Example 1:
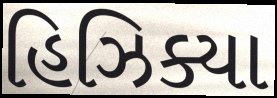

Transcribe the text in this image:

હિઝિક્યા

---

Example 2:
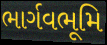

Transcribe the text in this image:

ભાર્ગવભૂમિ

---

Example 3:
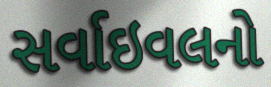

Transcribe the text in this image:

સર્વાઇવલનો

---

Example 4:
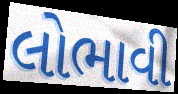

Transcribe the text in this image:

લોભાવી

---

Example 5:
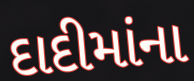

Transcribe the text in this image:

દાદીમાંના